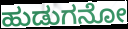
ಹುಡುಗನೋ